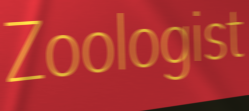
Zoologist